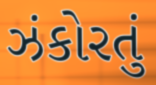
ઝંકોરતું